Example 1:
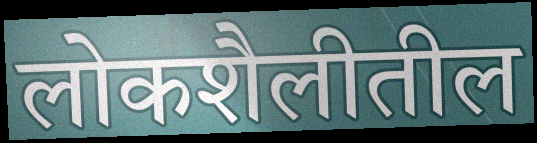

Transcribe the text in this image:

लोकशैलीतील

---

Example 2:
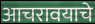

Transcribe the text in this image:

आचरावयाचे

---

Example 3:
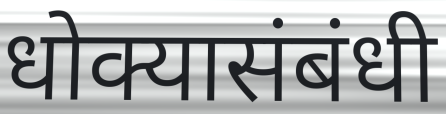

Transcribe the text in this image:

धोक्यासंबंधी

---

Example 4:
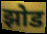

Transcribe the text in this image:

झोड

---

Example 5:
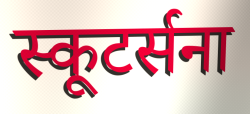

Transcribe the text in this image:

स्कूटर्सना